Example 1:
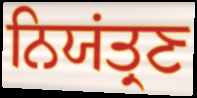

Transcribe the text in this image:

ਨਿਯਂਤ੍ਰਣ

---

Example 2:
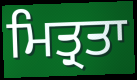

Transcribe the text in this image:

ਮਿਤ੍ਰਤਾ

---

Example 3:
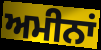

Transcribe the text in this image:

ਅਮੀਨਾਂ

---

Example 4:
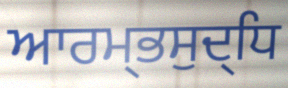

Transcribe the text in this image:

ਆਰਮ੍ਭਸੁਦ੍ਧਿ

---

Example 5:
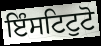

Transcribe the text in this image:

ਇੰਸਟਿਟੁਟੋ